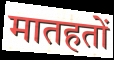
मातहतों